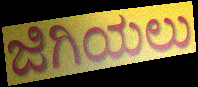
ಜಿಗಿಯಲು